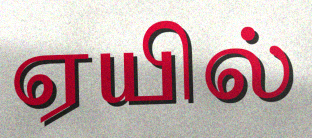
ஏயில்